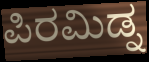
ಪಿರಮಿಡ್ನ